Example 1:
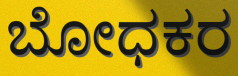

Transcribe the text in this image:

ಬೋಧಕರ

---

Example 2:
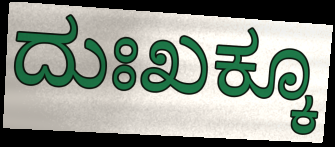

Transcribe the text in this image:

ದುಃಖಕ್ಕೂ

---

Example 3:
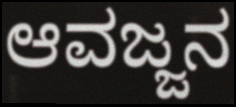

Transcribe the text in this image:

ಆವಜ್ಜನ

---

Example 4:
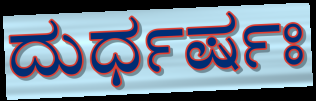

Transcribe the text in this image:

ದುರ್ಧರ್ಷಃ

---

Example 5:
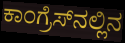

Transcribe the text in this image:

ಕಾಂಗ್ರೆಸ್‌ನಲ್ಲಿನ